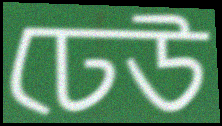
ঢেউ